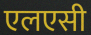
एलएसी